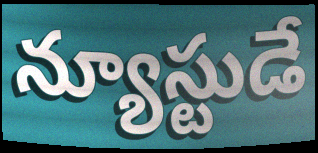
న్యూస్టుడే